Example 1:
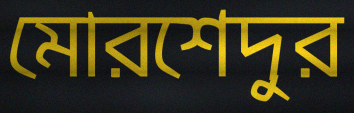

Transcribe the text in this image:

মোরশেদুর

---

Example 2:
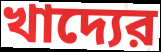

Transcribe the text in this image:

খাদ্যের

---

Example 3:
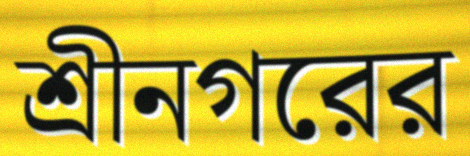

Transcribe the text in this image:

শ্রীনগরের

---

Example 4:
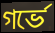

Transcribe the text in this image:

গর্ভে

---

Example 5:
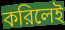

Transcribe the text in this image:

করিলেই